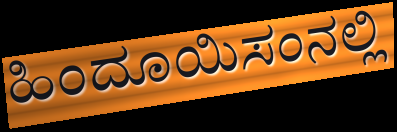
ಹಿಂದೂಯಿಸಂನಲ್ಲಿ